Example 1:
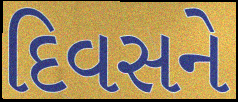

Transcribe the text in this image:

દિવસને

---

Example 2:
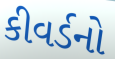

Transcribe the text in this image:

કીવર્ડનો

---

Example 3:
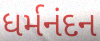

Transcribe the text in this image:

ધર્મનંદન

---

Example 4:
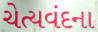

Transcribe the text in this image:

ચેત્યવંદના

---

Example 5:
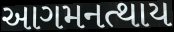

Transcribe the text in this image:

આગમનત્થાય